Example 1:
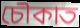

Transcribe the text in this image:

চৌকাত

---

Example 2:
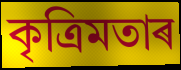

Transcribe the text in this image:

কৃত্ৰিমতাৰ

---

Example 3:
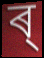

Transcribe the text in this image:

ৰ্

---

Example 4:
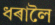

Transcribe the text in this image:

ধৰালৈ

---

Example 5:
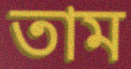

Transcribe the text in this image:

তাম